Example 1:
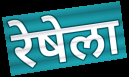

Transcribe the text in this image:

रेषेला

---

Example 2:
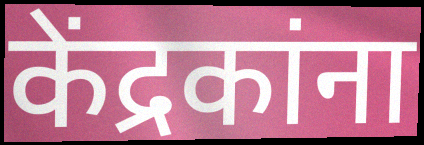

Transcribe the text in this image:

केंद्रकांना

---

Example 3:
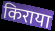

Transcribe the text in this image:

किराया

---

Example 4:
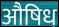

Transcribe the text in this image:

औषिध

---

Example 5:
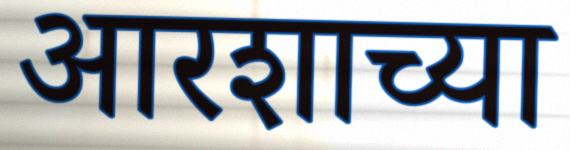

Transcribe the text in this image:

आरशाच्या